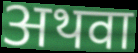
अथवा